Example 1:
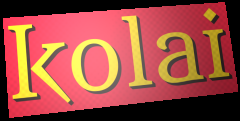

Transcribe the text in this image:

kolai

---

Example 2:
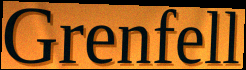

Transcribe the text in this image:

Grenfell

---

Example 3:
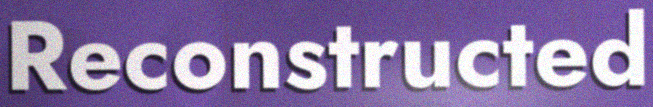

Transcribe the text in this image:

Reconstructed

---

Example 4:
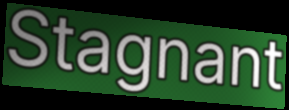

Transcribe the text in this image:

Stagnant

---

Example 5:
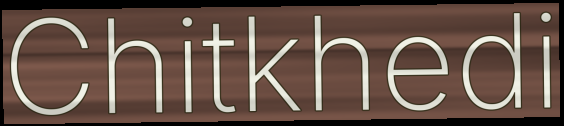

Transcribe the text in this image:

Chitkhedi